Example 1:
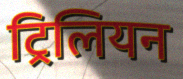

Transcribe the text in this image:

ट्रिलियन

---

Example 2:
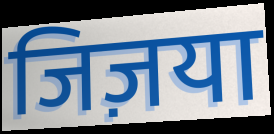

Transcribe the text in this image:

जिज़या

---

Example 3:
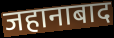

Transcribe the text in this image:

जहानाबाद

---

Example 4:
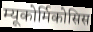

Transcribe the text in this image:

म्यूकोर्मिकोसिस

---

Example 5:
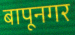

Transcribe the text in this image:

बापूनगर